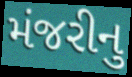
મંજરીનુ